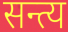
सन्त्य